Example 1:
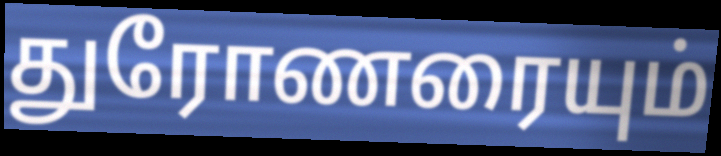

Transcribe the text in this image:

துரோணரையும்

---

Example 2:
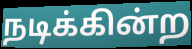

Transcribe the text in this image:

நடிக்கின்ற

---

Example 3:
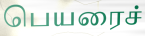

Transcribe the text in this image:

பெயரைச்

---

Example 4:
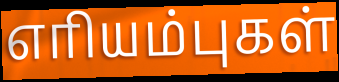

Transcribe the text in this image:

எரியம்புகள்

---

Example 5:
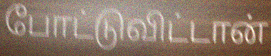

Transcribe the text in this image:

போட்டுவிட்டான்